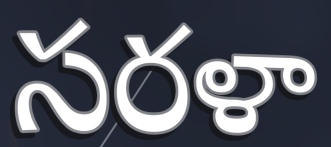
సరళా